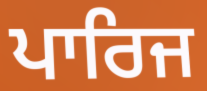
ਪਾਰਿਜ